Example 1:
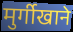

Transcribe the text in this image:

मुर्गीखाने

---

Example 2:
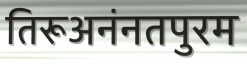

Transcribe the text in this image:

तिरूअनंनतपुरम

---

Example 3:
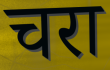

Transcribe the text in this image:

चरा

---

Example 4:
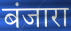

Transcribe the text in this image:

बंजारा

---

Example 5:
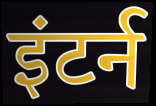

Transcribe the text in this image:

इंटर्न